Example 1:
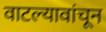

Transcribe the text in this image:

वाटल्यावांचून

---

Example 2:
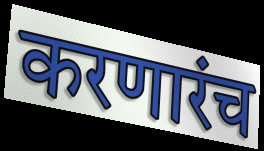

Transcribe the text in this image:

करणारंच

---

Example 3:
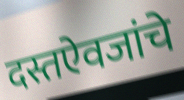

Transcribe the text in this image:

दस्तऐवजांचे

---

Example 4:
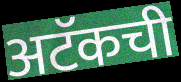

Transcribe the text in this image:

अटॅकची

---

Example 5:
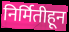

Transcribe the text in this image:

निर्मितीहून